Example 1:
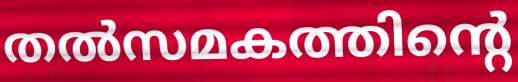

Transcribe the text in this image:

തൽസമകത്തിന്റെ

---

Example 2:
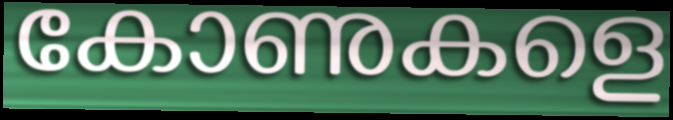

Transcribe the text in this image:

കോണുകളെ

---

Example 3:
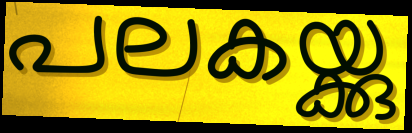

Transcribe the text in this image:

പലകയ്ക്കു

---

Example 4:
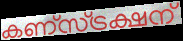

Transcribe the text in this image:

കണ്സ്ട്രക്ഷന്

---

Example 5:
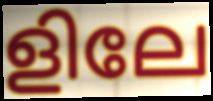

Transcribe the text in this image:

ളിലേ